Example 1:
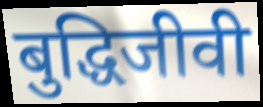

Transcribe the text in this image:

बुद्धिजीवी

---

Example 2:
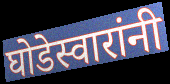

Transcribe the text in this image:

घोडेस्वारांनी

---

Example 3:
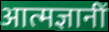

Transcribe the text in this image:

आत्मज्ञानीं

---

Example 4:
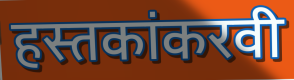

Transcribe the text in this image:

हस्तकांकरवी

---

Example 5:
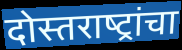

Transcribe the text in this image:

दोस्तराष्ट्रांचा